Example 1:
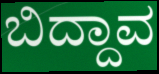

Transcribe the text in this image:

ಬಿದ್ದಾವ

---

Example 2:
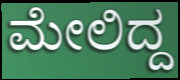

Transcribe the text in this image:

ಮೇಲಿದ್ದ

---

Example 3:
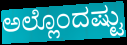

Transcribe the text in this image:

ಅಲ್ಲೊಂದಷ್ಟು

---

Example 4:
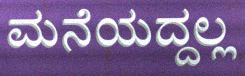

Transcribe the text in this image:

ಮನೆಯದ್ದಲ್ಲ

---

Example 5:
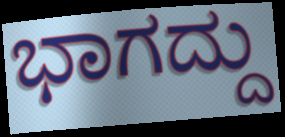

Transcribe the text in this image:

ಭಾಗದ್ದು